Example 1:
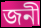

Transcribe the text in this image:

জনী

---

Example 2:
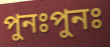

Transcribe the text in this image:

পুনঃপুনঃ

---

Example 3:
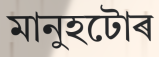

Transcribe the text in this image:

মানুহটোৰ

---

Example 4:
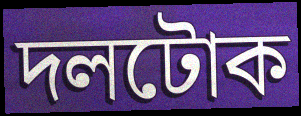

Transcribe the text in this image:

দলটোক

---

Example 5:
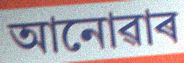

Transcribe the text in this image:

আনোৱাৰ